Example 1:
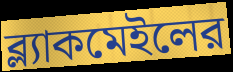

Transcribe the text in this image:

ব্ল্যাকমেইলের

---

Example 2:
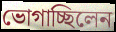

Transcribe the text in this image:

ভোগাচ্ছিলেন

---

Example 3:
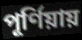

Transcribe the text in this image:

পূর্ণিয়ায়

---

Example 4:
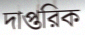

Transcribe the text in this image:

দাপ্তরিক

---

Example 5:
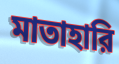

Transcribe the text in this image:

মাতাহারি